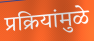
प्रक्रियांमुळे